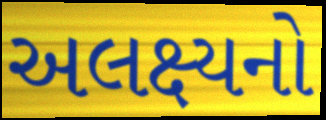
અલક્ષ્યનો